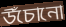
উঁচোনো